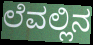
ಲೆವಲ್ಲಿನ